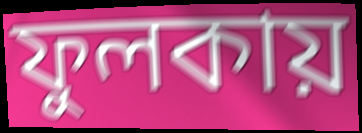
ফুলকায়